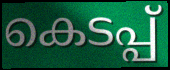
കെടപ്പ്